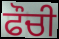
ਫੌਚੀ